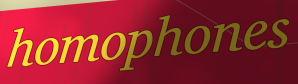
homophones